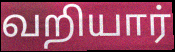
வறியார்